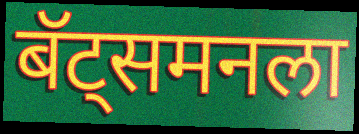
बॅट्समनला